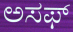
ಅಸಫ್